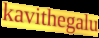
kavithegalu